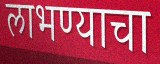
लाभण्याचा